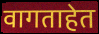
वागताहेत